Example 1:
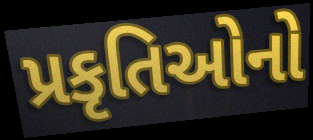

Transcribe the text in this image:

પ્રકૃતિઓનો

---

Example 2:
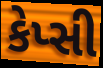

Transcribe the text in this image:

કેપ્સી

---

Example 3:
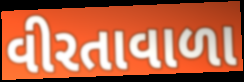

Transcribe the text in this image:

વીરતાવાળા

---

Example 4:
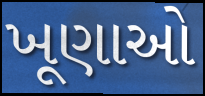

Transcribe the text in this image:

ખૂણાઓ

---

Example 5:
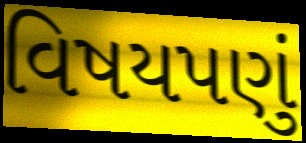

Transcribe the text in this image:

વિષયપણું